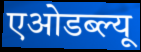
एओडब्ल्यू